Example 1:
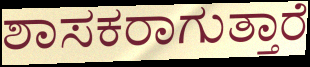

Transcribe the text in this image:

ಶಾಸಕರಾಗುತ್ತಾರೆ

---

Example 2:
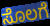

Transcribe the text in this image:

ಸೊಲಗೆ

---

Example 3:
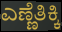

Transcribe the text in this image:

ಎಣ್ಣೆತಿಕ್ಕಿ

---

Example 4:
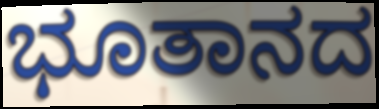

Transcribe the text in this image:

ಭೂತಾನದ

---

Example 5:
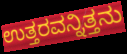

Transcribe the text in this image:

ಉತ್ತರವನ್ನಿತ್ತನು